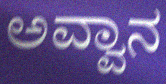
ಅವ್ವಾನ